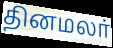
தினமலர்